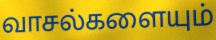
வாசல்களையும்